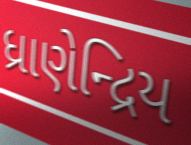
ધ્રાણેન્દ્રિય